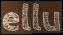
ellu